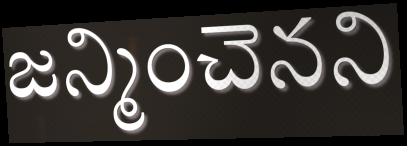
జన్మించెనని